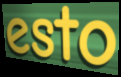
esto